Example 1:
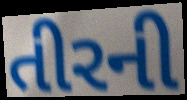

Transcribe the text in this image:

તીરની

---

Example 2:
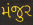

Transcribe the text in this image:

મંજુર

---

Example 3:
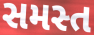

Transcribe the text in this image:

સમસ્ત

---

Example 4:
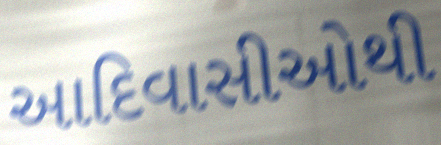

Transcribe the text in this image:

આદિવાસીઓથી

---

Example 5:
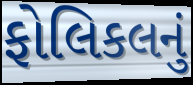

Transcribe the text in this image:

ફોલિકલનું